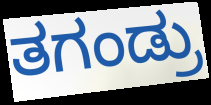
ತಗಂಡ್ರು